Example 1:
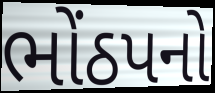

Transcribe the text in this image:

ભોંઠપનો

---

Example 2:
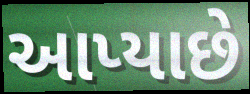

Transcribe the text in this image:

આપ્યાછે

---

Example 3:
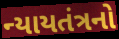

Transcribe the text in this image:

ન્યાયતંત્રનો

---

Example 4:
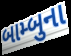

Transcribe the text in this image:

બામ્બુના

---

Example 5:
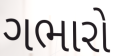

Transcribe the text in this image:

ગભારો